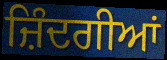
ਜ਼ਿੰਦਗੀਆਂ